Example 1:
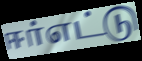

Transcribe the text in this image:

ஈர்எட்டு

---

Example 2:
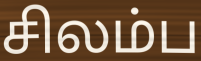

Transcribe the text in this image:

சிலம்ப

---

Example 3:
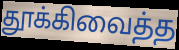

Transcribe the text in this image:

தூக்கிவைத்த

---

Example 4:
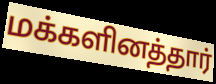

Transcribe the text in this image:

மக்களினத்தார்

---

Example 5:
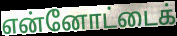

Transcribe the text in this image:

என்னோட்டைக்